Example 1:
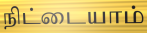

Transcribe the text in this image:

நிட்டையாம்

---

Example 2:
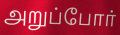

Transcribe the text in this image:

அறுப்போர்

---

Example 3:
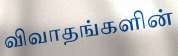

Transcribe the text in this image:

விவாதங்களின்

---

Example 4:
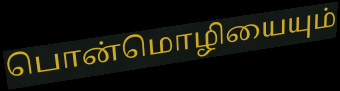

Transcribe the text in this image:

பொன்மொழியையும்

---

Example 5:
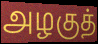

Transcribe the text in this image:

அழகுத்